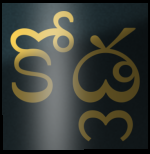
కోడ్ల